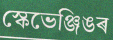
স্কেভেঞ্জিঙৰ